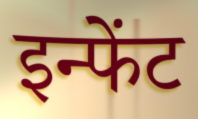
इन्फेंट